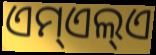
ଏମ୍ଏଲ୍ଏ